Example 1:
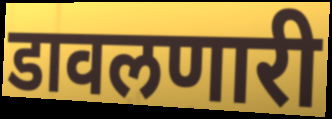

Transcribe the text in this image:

डावलणारी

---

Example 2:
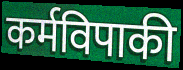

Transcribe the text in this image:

कर्मविपाकी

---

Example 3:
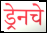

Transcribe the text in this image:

ड्रेनचे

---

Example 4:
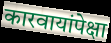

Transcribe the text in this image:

कारवायांपेक्षा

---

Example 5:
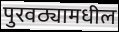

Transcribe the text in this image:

पुरवठ्यामधील